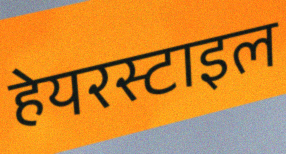
हेयरस्टाइल